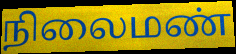
நிலைமண்